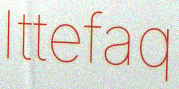
Ittefaq